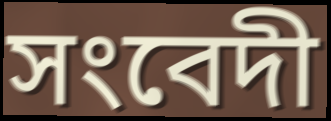
সংবেদী